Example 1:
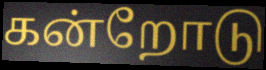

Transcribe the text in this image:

கன்றோடு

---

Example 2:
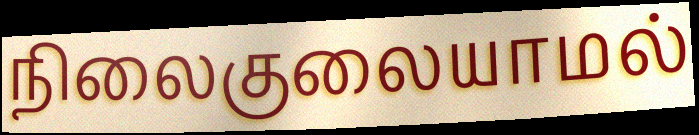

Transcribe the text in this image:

நிலைகுலையாமல்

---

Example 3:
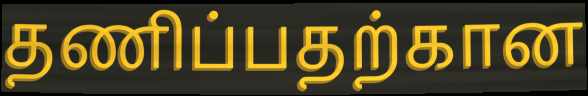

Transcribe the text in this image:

தணிப்பதற்கான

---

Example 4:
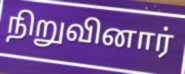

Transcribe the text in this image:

நிறுவினார்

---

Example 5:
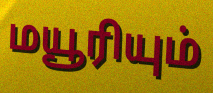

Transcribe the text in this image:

மயூரியும்